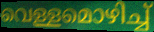
വെള്ളമൊഴിച്ച്